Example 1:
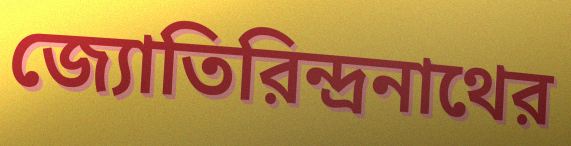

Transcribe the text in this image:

জ্যোতিরিন্দ্রনাথের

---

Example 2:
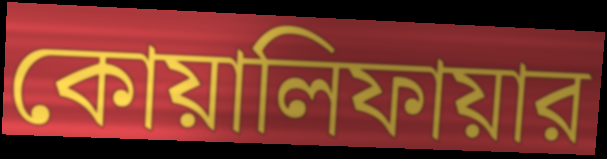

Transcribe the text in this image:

কোয়ালিফায়ার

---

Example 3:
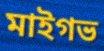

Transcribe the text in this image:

মাইগভ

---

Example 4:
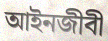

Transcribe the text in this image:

আইনজীবী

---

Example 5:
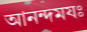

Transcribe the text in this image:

আনন্দমযঃ